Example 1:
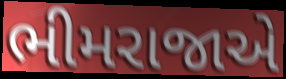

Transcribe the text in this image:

ભીમરાજાએ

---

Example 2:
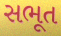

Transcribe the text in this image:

સભૂત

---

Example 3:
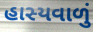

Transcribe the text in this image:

હાસ્યવાળું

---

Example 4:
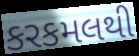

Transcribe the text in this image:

કરકમલથી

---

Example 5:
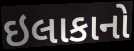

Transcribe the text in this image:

ઇલાકાનો